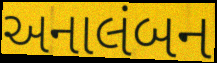
અનાલંબન